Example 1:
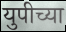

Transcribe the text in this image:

युपीच्या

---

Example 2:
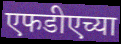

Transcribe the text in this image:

एफडीएच्या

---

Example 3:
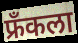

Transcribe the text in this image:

फ्रॅंकला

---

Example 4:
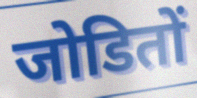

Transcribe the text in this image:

जोडितों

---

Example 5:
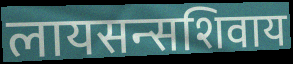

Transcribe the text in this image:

लायसन्सशिवाय